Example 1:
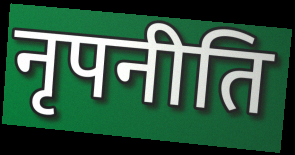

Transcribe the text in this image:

नृपनीति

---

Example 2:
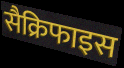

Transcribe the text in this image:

सैक्रिफाइस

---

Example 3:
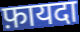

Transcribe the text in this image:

फ़ायदा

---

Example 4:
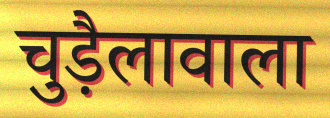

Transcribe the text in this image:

चुड़ैलावाला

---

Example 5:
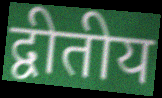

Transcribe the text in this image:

द्वीतीय